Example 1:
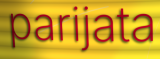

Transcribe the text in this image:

parijata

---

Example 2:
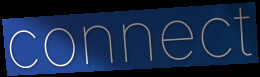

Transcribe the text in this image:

connect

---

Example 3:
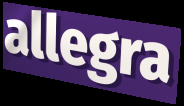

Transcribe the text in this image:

allegra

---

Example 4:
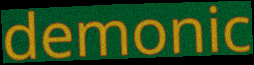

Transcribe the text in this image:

demonic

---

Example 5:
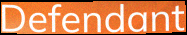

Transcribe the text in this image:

Defendant